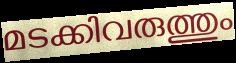
മടക്കിവരുത്തും